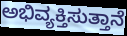
ಅಭಿವ್ಯಕ್ತಿಸುತ್ತಾನೆ